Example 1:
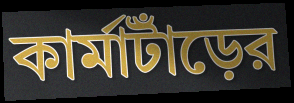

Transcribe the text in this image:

কার্মাটাঁড়ের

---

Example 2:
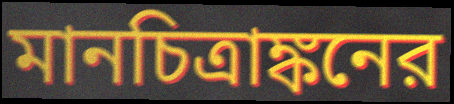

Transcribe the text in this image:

মানচিত্রাঙ্কনের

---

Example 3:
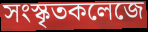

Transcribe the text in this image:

সংস্কৃতকলেজে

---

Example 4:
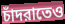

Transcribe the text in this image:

চাঁদরাতেও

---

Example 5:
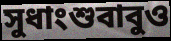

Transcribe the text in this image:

সুধাংশুবাবুও